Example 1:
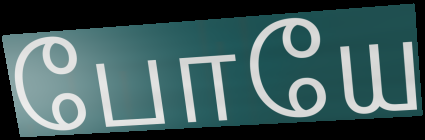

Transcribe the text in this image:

போயே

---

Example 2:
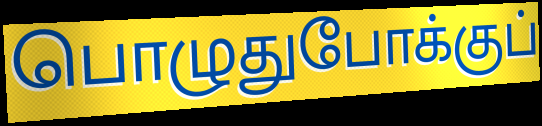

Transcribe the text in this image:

பொழுதுபோக்குப்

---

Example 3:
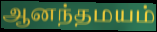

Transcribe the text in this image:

ஆனந்தமயம்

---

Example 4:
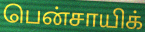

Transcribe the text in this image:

பென்சாயிக்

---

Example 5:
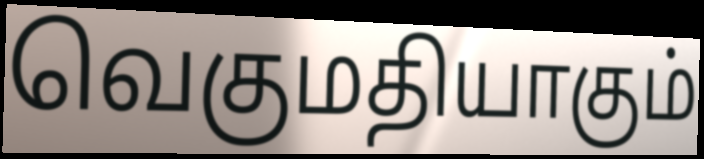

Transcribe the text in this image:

வெகுமதியாகும்